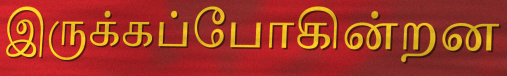
இருக்கப்போகின்றன